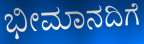
ಭೀಮಾನದಿಗೆ